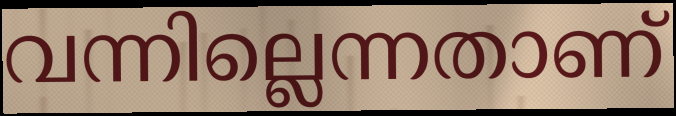
വന്നില്ലെന്നതാണ്